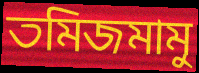
তমিজমামু